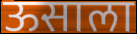
ऊसाला